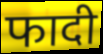
फादी